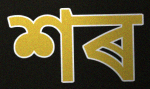
শৰ